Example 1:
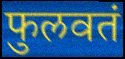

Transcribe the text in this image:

फुलवतं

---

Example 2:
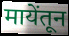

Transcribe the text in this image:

मायेंतून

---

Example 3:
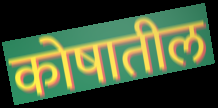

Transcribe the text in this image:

कोषातील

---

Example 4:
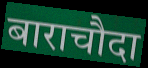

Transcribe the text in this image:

बाराचौदा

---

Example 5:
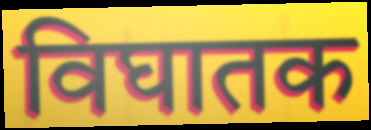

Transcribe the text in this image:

विघातक